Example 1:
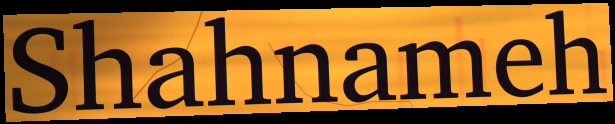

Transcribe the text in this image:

Shahnameh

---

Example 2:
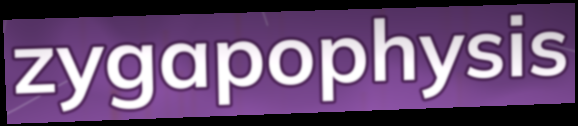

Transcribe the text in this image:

zygapophysis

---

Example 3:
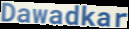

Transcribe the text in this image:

Dawadkar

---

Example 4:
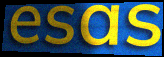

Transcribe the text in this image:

esas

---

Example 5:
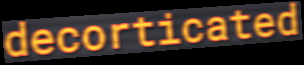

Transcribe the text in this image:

decorticated